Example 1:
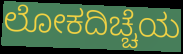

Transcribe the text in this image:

ಲೋಕದಿಚ್ಚೆಯ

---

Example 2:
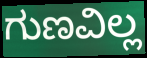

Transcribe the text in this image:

ಗುಣವಿಲ್ಲ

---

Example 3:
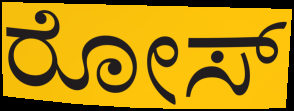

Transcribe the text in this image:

ರೋಸ್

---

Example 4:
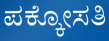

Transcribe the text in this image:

ಪಕ್ಕೋಸತಿ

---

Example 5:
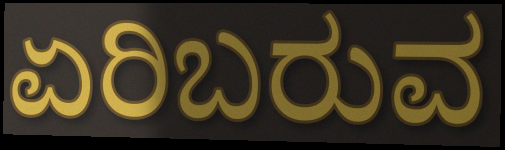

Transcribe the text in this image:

ಏರಿಬರುವ